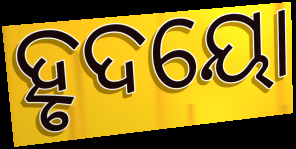
ହୃଦୟୋ